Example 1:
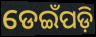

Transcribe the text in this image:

ଡେଇଁପଡ଼ି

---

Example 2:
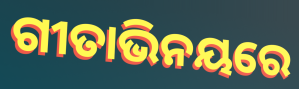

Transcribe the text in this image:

ଗୀତାଭିନୟରେ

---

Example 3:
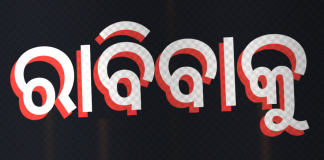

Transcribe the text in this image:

ରାବିବାକୁ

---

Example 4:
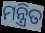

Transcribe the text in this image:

ମନ୍ତ୍ରିତ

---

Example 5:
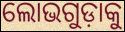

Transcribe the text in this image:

ଲୋଭଗୁଡ଼ାକୁ